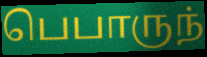
பெபாருந்